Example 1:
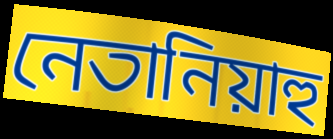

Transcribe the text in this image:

নেতানিয়াহু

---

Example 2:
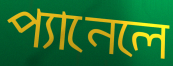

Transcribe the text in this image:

প্যানেলে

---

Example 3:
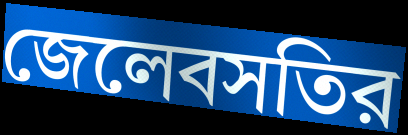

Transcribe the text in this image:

জেলেবসতির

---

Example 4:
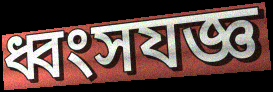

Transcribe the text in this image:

ধ্বংসযজ্ঞ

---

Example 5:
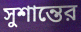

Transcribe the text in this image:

সুশান্তের